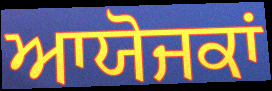
ਆਯੋਜਕਾਂ